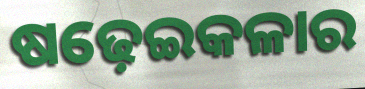
ଷଢ଼େଇକଳାର